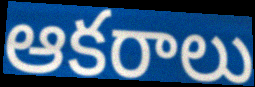
ఆకరాలు